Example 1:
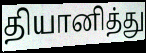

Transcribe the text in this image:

தியானித்து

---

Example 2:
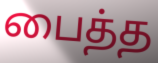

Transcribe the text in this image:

பைத்த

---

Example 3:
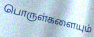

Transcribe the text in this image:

பொருள்களையும்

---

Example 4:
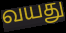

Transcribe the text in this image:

வயது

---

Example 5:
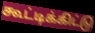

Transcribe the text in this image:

கூட்டிக்கிட்டு